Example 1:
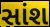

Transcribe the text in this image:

સાંશ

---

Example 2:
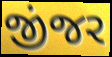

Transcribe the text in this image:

જીંજર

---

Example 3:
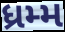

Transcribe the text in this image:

ધ્રમ્મ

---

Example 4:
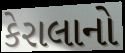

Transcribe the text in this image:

કેરાલાનો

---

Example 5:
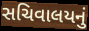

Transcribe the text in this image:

સચિવાલયનું